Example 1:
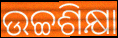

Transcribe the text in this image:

ଉଚ୍ଚଶିକ୍ଷା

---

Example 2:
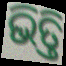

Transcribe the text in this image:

ଭିତ୍ତି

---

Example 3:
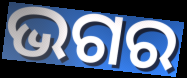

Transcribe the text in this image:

ଭଗର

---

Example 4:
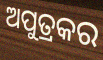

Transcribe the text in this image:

ଅପୁତ୍ରକର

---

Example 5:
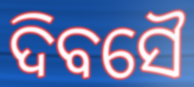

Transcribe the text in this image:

ଦିବସୈ